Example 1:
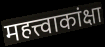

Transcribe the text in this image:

महत्त्वाकांक्षा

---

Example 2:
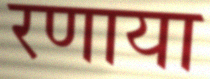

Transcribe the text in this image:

रणाया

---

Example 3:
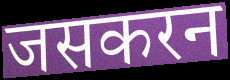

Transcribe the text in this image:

जसकरन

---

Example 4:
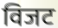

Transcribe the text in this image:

विजट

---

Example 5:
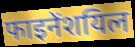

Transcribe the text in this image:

फाइनेंशयिल